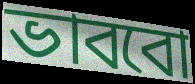
ভাববো